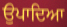
ਉਪਾਦਿਆ